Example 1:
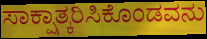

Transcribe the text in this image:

ಸಾಕ್ಷಾತ್ಕರಿಸಿಕೊಂಡವನು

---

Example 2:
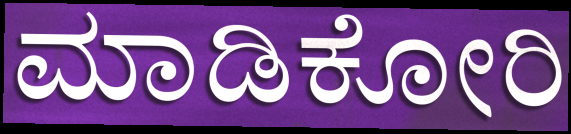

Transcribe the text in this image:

ಮಾಡಿಕೋರಿ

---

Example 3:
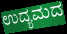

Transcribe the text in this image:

ಉದ್ಯಮದ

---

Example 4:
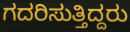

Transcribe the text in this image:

ಗದರಿಸುತ್ತಿದ್ದರು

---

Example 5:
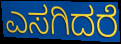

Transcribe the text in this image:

ಎಸಗಿದರೆ